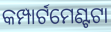
କମ୍ପାର୍ଟମେଣ୍ଟଟା